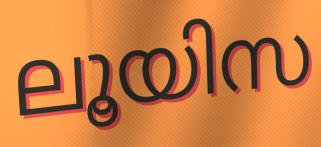
ലൂയിസ